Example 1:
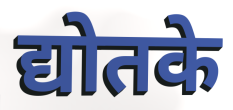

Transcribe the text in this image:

द्योतके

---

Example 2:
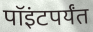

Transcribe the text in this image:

पॉइंटपर्यंत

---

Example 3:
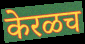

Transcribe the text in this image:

केरळच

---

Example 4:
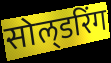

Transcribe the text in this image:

सोल्डरिंग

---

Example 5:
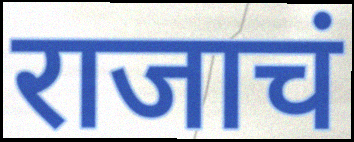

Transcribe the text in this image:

राजाचं